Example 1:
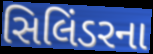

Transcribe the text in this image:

સિલિંડરના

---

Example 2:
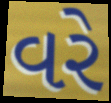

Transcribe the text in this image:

વરે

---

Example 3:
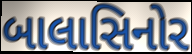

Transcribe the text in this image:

બાલાસિનોર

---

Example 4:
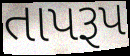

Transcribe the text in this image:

તાપરૂપ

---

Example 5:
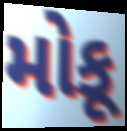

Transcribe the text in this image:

મોકૂ